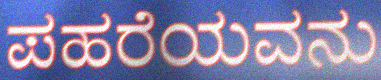
ಪಹರೆಯವನು